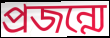
প্রজন্মে